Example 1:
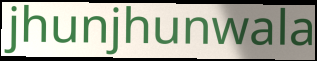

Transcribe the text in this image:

jhunjhunwala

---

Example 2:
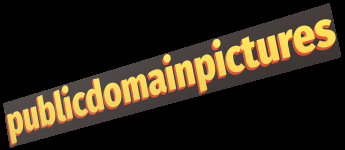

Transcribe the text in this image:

publicdomainpictures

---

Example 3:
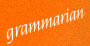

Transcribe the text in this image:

grammarian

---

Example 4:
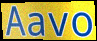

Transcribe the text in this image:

Aavo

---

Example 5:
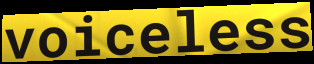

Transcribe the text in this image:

voiceless